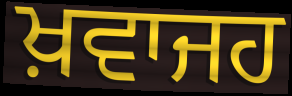
ਖ਼ਵਾਜਹ